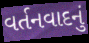
વર્તનવાદનું